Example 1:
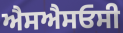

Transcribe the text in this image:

ਐਸਐਸਓਸੀ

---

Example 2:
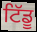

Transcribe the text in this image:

ਟਿੱਡੂ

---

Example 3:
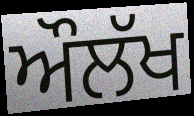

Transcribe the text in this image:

ਔਲੱਖ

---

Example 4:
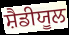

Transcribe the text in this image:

ਸ਼ੈਡੀਯੂਲ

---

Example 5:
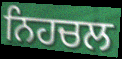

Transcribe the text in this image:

ਨਿਹਚਲ